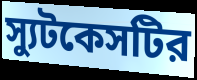
স্যুটকেসটির